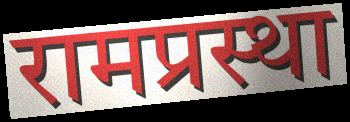
रामप्रस्था